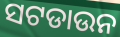
ସଟଡାଉନ